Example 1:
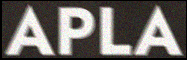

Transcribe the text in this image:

APLA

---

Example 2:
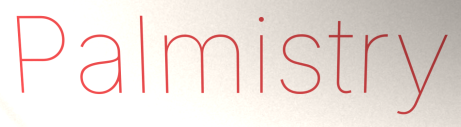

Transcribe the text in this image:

Palmistry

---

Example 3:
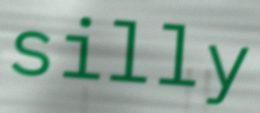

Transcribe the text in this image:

silly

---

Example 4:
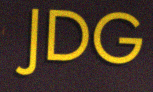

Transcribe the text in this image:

JDG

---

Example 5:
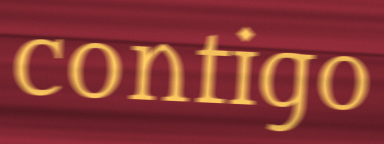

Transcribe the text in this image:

contigo